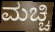
ಮಚ್ಚಿ